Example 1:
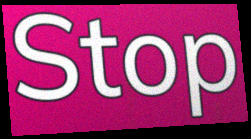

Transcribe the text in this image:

Stop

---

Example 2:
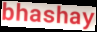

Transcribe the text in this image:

bhashay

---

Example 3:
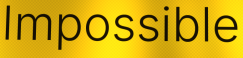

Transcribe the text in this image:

Impossible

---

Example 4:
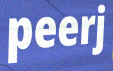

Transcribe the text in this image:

peerj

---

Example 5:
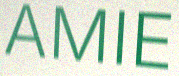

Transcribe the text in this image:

AMIE